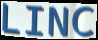
LINC